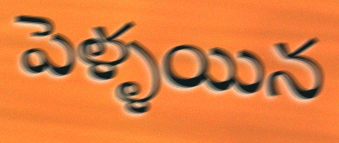
పెళ్ళయిన